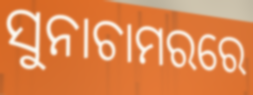
ସୁନାଚାମରରେ